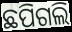
ଛପିଗଲି